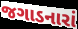
જગાડનારાં